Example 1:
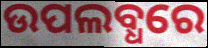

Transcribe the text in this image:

ଉପଲବ୍ଧରେ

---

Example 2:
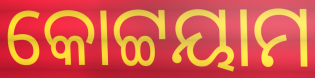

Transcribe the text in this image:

କୋଟ୍ଟୟାମ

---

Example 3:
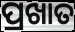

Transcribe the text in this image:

ପ୍ରଖାତ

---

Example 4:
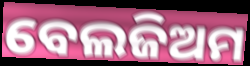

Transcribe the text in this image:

ବେଲଜିଅମ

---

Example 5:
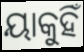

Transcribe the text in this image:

ୟାକୁହିଁ